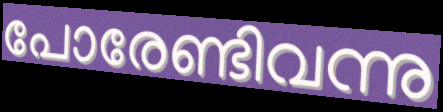
പോരേണ്ടിവന്നു